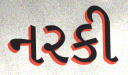
નરકી